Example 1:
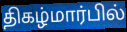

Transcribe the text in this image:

திகழ்மார்பில்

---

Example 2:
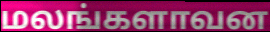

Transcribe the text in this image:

மலங்களாவன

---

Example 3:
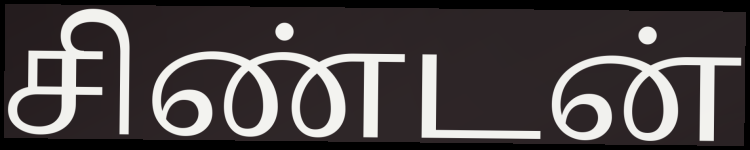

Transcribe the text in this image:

சிண்டன்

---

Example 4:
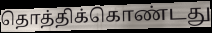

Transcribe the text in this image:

தொத்திக்கொண்டது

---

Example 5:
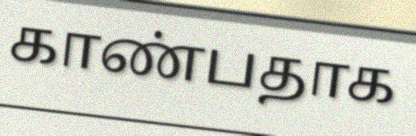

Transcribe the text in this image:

காண்பதாக